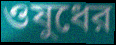
ওষুধের